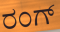
ರಂಗ್